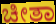
ಚೀತಾ